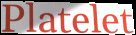
Platelet